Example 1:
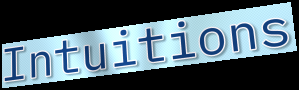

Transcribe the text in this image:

Intuitions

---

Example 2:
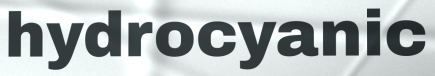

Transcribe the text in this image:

hydrocyanic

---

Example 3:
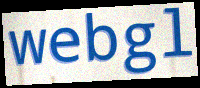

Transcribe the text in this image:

webgl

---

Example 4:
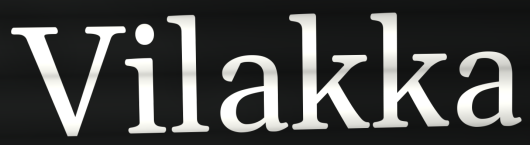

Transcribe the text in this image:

Vilakka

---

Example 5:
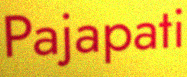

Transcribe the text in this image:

Pajapati